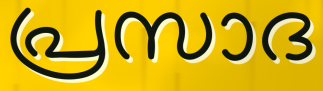
പ്രസാദ